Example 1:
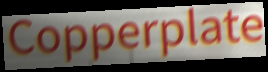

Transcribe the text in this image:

Copperplate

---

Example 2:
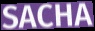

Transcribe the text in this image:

SACHA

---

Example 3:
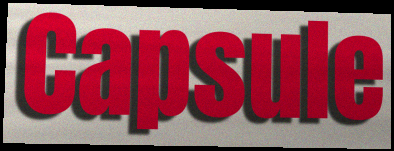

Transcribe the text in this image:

Capsule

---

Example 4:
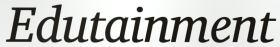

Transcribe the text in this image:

Edutainment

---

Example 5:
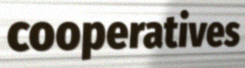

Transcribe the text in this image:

cooperatives